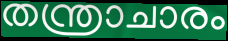
തന്ത്രാചാരം